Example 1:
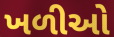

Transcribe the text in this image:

ખળીઓ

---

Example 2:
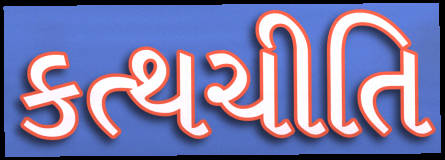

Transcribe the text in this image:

કત્થચીતિ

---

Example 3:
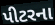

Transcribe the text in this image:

પીટરના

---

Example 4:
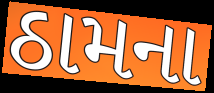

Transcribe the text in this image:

ઠામના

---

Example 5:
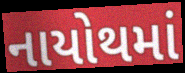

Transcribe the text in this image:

નાયોથમાં